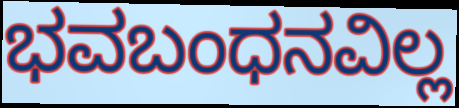
ಭವಬಂಧನವಿಲ್ಲ